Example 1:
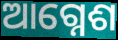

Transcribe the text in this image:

ଆଗ୍ନେଶ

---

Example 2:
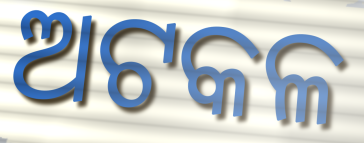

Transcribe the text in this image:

ଅଟକଳ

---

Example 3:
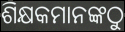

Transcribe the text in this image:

ଶିକ୍ଷକମାନଙ୍କଠୁ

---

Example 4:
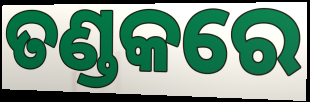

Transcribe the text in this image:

ତଣ୍ଡକରେ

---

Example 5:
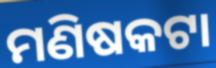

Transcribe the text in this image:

ମଣିଷକଟା